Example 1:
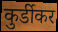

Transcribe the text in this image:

कुर्डीकर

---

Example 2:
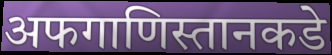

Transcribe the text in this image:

अफगाणिस्तानकडे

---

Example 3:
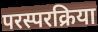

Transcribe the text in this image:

परस्परक्रिया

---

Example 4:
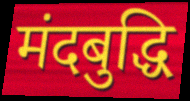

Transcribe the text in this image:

मंदबुद्धि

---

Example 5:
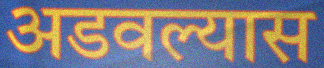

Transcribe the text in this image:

अडवल्यास